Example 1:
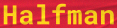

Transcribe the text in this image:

Halfman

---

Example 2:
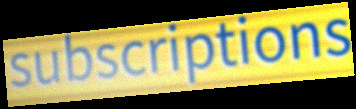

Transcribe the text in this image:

subscriptions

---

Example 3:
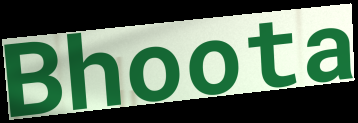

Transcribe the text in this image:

Bhoota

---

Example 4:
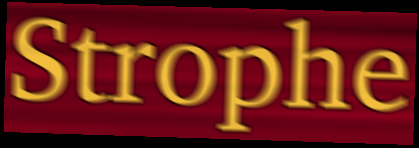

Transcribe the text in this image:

Strophe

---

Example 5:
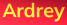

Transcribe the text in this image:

Ardrey